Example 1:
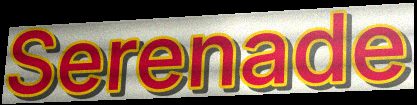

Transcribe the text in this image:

Serenade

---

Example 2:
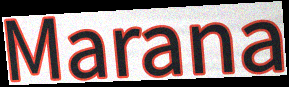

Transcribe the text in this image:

Marana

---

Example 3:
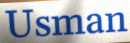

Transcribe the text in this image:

Usman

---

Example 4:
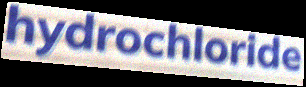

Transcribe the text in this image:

hydrochloride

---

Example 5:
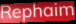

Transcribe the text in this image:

Rephaim